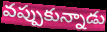
వప్పుకున్నాడు